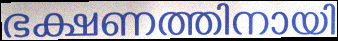
ഭക്ഷണത്തിനായി